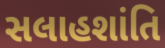
સલાહશાંતિ